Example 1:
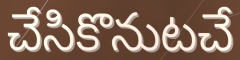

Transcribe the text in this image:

చేసికొనుటచే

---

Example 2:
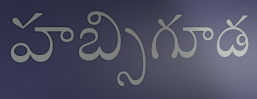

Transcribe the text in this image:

హబ్సిగూడ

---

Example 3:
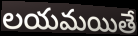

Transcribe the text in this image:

లయమయితే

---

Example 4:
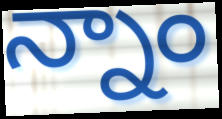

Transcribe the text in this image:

న్నాం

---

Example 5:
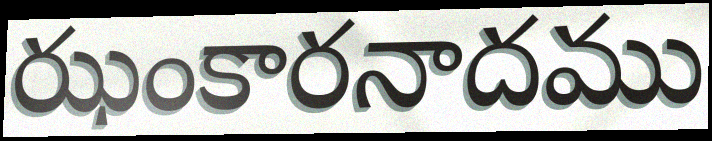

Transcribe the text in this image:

ఝంకారనాదము